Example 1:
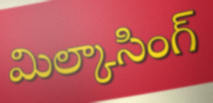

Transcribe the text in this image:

మిల్కాసింగ్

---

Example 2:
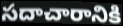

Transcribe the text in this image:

సదాచారానికి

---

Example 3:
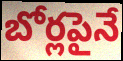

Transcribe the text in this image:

బోర్లపైనే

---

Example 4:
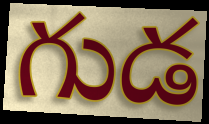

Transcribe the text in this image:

గుడ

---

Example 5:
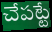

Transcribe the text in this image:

చేపట్టే